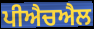
ਪੀਐਚਐਲ